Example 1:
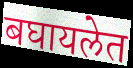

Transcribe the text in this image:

बघायलेत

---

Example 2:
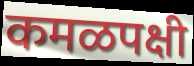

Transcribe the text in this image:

कमळपक्षी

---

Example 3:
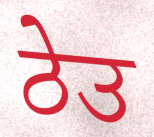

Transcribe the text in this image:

ठेउ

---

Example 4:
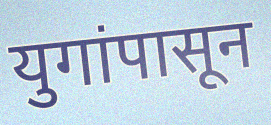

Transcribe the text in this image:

युगांपासून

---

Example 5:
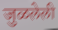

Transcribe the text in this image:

जुळलेली